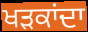
ਖੜਕਾਂਦਾ